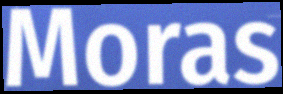
Moras